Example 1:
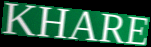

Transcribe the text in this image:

KHARE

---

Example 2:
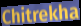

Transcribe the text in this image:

Chitrekha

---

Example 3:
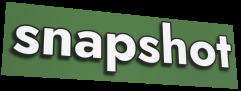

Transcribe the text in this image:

snapshot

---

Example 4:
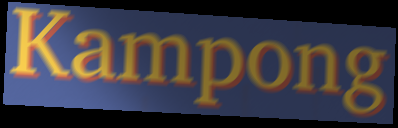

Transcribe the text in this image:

Kampong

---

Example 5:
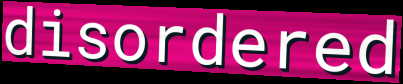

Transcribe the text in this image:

disordered